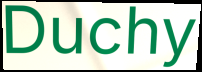
Duchy